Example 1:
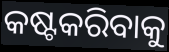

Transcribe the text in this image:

କଷ୍ଟକରିବାକୁ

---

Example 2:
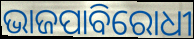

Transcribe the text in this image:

ଭାଜପାବିରୋଧୀ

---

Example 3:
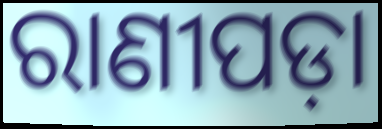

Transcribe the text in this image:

ରାଣୀପଡ଼ା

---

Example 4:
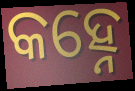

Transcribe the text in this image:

କହ୍ନେ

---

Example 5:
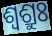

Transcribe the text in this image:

ଶ୍ଵଶ୍ରୁଃ